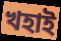
খহাই